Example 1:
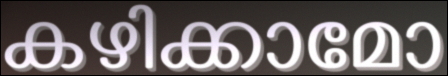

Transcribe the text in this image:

കഴിക്കാമോ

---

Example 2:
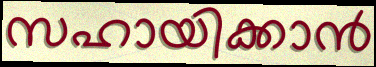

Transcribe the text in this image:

സഹായിക്കാൻ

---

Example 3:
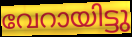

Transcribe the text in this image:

വേറായിട്ടു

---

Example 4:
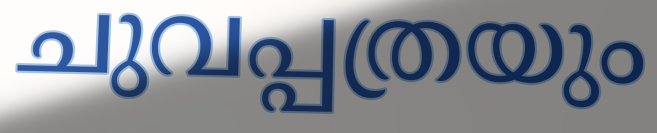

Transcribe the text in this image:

ചുവപ്പത്രയും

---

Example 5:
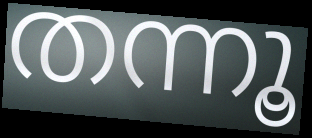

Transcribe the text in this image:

തന്നൂ